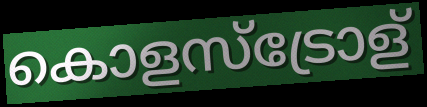
കൊളസ്ട്രോള്